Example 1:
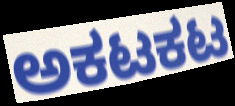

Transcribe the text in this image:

ಅಕಟಕಟ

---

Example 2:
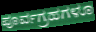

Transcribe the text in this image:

ಪೂರ್ವಗ್ರಹಗಳೂ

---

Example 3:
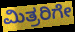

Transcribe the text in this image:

ಮಿತ್ರರಿಗೇ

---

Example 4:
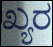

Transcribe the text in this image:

ಖ್ಯರ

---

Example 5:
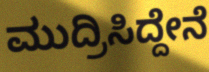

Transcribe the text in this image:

ಮುದ್ರಿಸಿದ್ದೇನೆ